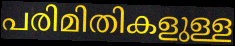
പരിമിതികളുള്ള